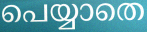
പെയ്യാതെ